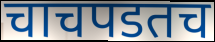
चाचपडतच